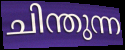
ചിന്തുന്ന